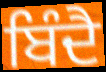
ਬਿੰਦੈ